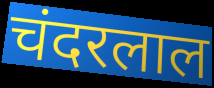
चंदरलाल